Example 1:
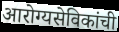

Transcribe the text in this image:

आरोग्यसेविकांची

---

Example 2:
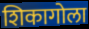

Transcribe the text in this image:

शिकागोला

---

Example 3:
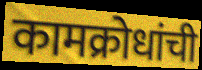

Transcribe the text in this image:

कामक्रोधांची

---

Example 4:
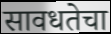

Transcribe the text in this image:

सावधतेचा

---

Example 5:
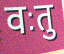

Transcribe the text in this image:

वःतु